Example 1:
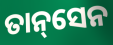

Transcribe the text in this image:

ତାନ୍‌ସେନ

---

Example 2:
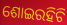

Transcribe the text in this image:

ଶୋଇରହିଚି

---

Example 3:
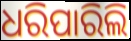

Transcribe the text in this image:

ଧରିପାରିଲି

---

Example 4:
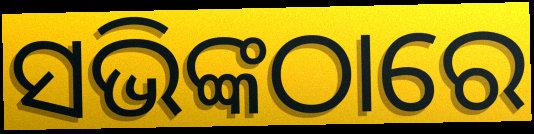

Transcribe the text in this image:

ସଭିଙ୍କଠାରେ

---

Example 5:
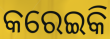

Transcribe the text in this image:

କରେଇକି